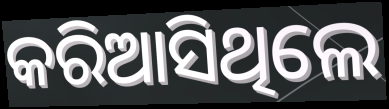
କରିଆସିଥିଲେ